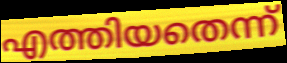
എത്തിയതെന്ന്